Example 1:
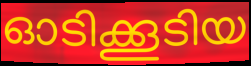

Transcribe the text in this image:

ഓടിക്കൂടിയ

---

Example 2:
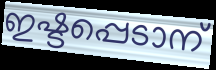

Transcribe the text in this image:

ഇഷ്ടപ്പെടാന്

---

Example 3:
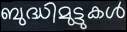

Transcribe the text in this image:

ബുദ്ധിമുട്ടുകൾ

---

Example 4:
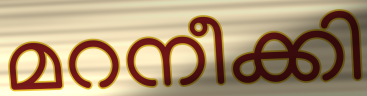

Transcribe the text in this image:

മറനീക്കി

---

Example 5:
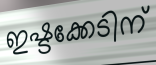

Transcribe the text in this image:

ഇഷ്ടക്കേടിന്